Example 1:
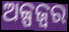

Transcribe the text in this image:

ଅଳ୍ପଜ୍ଵର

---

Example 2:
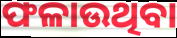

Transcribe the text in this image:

ଫଳାଉଥିବା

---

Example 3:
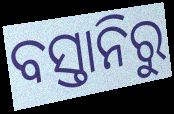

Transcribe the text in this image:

ବସ୍ତାନିରୁ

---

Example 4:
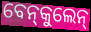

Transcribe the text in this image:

ବେନ୍‍କୁଲେନ୍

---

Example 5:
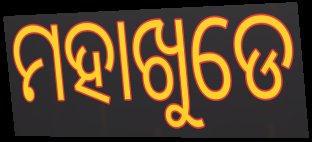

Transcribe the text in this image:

ମହାଖୁଡେ